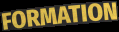
FORMATION